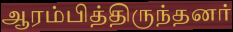
ஆரம்பித்திருந்தனர்